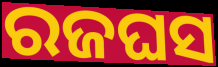
ରଜଘସ